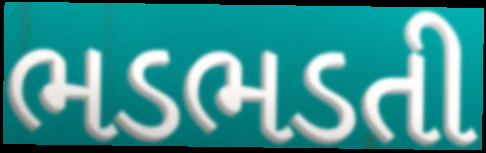
ભડભડતી